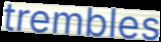
trembles